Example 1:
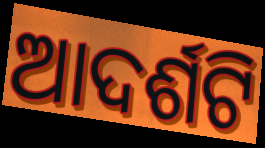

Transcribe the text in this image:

ଆଦର୍ଶଟି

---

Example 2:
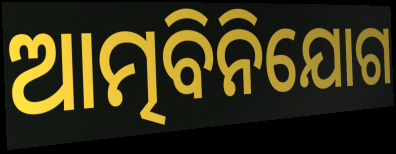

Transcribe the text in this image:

ଆତ୍ମବିନିଯୋଗ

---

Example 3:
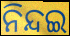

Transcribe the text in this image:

ନିନ୍ଦଇ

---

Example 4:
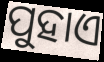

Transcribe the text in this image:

ପୁହାଏ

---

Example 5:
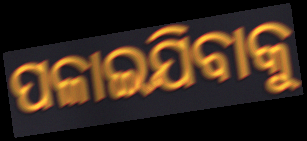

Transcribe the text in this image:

ପଳାଇଯିବାକୁ